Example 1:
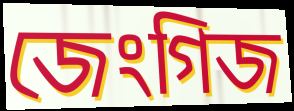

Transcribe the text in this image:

জেংগিজ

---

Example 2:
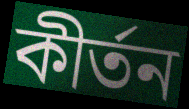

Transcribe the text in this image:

কীৰ্তন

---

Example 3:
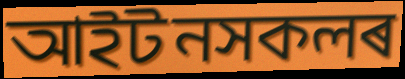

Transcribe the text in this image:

আইটনসকলৰ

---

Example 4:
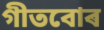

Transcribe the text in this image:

গীতবোৰ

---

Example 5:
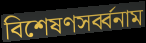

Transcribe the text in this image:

বিশেষণসৰ্ব্বনাম